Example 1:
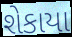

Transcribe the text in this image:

શેકાયા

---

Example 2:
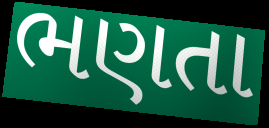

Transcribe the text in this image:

ભણતા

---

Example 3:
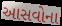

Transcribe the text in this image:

આસવોના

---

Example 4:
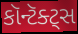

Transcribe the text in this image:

કૉન્ટૅક્ટ્સ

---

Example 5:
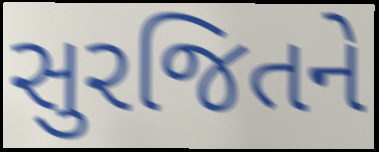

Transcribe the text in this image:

સુરજિતને